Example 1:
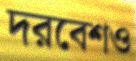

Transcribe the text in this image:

দরবেশও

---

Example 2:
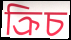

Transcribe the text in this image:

ক্রিচ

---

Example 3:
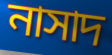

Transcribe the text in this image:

নাসাদ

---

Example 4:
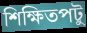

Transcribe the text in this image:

শিক্ষিতপটু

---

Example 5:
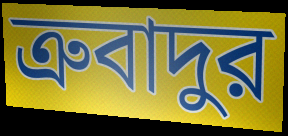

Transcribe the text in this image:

ত্রুবাদুর